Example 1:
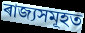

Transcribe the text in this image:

ৰাজ্যসমূহত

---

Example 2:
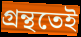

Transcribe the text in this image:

গ্ৰন্থতেই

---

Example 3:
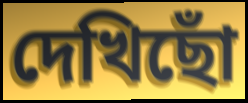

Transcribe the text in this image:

দেখিছোঁ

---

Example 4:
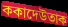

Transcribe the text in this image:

ককাদেউতাক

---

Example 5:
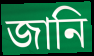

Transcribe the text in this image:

জানি